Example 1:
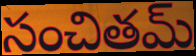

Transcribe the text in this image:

సంచితమ్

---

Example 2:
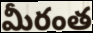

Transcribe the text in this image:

మీరంత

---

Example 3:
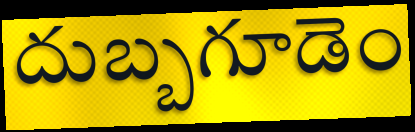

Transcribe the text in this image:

దుబ్బగూడెం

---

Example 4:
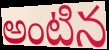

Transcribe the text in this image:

అంటిన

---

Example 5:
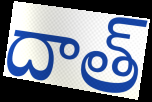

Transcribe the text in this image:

దాత్